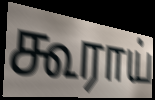
கூராய்